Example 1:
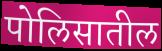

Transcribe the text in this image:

पोलिसातील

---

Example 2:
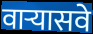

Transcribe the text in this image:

वाऱ्यासवे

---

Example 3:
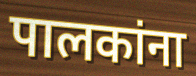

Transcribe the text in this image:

पालकांना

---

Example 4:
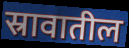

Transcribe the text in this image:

स्रावातील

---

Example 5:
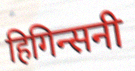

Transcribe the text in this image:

हिगिन्सनी